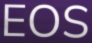
EOS